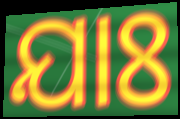
ଯାଃ